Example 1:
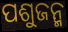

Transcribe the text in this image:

ପଶୁଜନ୍ମ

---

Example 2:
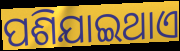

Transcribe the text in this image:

ପଶିଯାଇଥାଏ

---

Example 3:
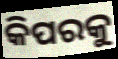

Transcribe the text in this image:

କିପରକୁ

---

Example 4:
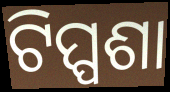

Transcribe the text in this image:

ଟିପ୍ପଶା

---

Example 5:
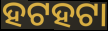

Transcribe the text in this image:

ହଟହଟା